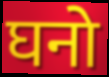
घनो